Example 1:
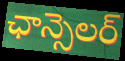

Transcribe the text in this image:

ఛాన్సెలర్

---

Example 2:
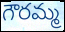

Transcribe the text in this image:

గౌరమ్మ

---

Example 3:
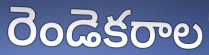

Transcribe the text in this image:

రెండెకరాల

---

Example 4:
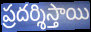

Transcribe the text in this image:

ప్రదర్శిస్తాయి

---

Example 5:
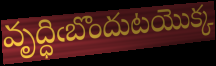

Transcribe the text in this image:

వృద్ధిఁబొందుటయొక్క